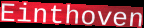
Einthoven